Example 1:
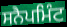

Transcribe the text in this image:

ਸਨੈਪਮਿੰਟ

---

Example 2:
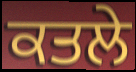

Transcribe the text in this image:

ਕਤਲੇ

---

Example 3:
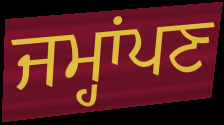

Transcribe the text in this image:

ਜਮ੍ਹਾਂਪਣ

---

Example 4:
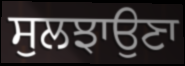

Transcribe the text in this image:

ਸੁਲਝਾਉਣਾ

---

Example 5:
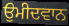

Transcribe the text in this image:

ਉਮੀਦਵਾਨ